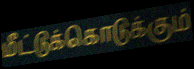
மீட்டுக்கொடுக்கும்